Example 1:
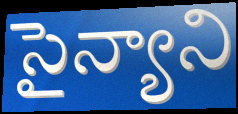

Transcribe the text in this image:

సైన్యాని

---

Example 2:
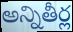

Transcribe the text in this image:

అన్నితీర్ల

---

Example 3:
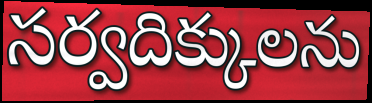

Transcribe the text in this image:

సర్వదిక్కులను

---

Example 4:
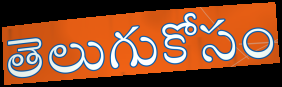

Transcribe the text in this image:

తెలుగుకోసం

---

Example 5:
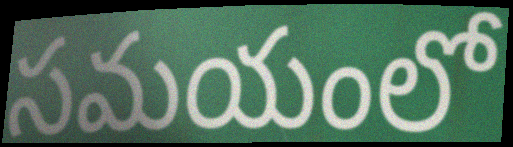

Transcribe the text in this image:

సమయంలో